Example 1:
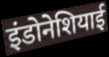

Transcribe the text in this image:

इंडोनेशियाई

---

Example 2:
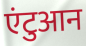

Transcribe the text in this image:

एंटुआन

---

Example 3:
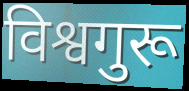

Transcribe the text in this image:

विश्वगुरू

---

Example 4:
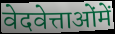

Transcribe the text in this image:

वेदवेत्ताओंमें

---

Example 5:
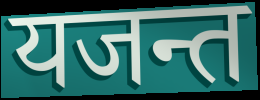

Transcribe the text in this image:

यजन्त